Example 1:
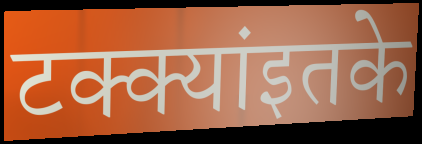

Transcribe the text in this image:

टक्क्यांइतके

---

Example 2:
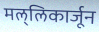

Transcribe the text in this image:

मल्लिकार्जून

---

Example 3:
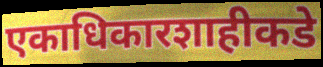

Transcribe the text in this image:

एकाधिकारशाहीकडे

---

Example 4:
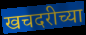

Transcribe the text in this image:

खचदरीच्या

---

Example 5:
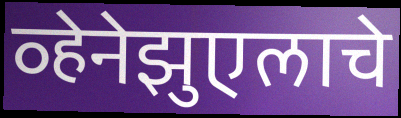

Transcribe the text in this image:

व्हेनेझुएलाचे